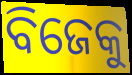
ବିଜେକୁ